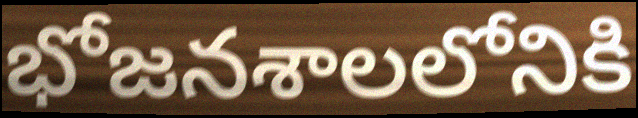
భోజనశాలలోనికి